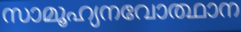
സാമൂഹ്യനവോത്ഥാന